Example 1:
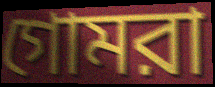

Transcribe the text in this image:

গোমরা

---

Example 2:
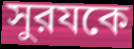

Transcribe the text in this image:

সুরযকে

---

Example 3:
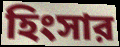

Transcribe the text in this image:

হিংসার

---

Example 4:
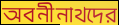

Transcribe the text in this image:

অবনীনাথদের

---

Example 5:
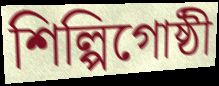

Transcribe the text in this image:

শিল্পিগোষ্ঠী